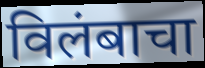
विलंबाचा